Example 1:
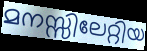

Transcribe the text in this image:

മനസ്സിലേറ്റിയ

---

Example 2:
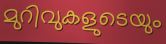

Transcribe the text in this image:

മുറിവുകളുടെയും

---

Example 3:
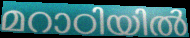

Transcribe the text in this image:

മറാഠിയിൽ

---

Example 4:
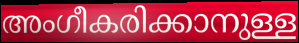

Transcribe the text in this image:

അംഗീകരിക്കാനുള്ള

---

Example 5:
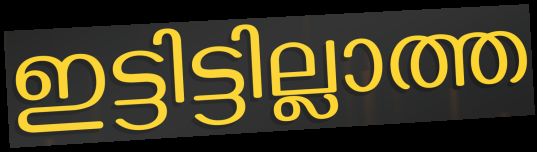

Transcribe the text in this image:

ഇട്ടിട്ടില്ലാത്ത